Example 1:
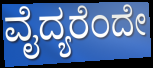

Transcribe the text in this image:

ವೈದ್ಯರೆಂದೇ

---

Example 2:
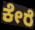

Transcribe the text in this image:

ಕೇರೆ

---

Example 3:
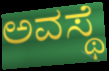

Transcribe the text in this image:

ಅವಸ್ಥೆ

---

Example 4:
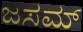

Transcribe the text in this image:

ಜಸಮ್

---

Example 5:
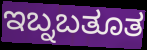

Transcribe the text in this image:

ಇಬ್ನಬತೂತ